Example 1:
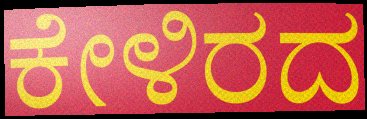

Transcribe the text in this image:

ಕೇಳಿರದ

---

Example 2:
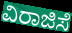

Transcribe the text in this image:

ವಿರಾಜಿಸೆ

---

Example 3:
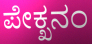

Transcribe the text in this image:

ಪೇಕ್ಖನಂ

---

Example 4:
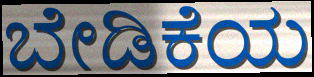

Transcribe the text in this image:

ಬೇಡಿಕೆಯ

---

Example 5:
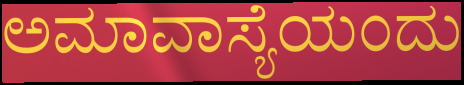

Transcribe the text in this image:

ಅಮಾವಾಸ್ಯೆಯಂದು